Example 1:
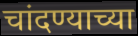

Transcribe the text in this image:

चांदण्याच्या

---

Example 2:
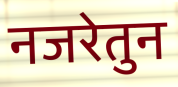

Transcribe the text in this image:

नजरेतुन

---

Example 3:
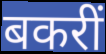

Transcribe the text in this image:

बकरीं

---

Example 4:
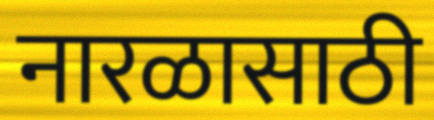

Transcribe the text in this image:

नारळासाठी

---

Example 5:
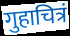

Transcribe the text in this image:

गुहाचित्रं